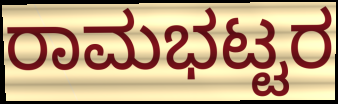
ರಾಮಭಟ್ಟರ